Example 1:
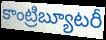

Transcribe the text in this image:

కాంట్రిబ్యూటరీ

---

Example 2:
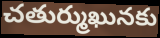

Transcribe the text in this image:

చతుర్ముఖునకు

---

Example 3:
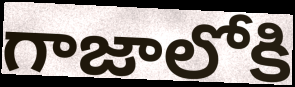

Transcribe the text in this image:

గాజాలోకి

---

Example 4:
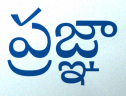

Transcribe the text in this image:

ప్రజ్ఞా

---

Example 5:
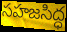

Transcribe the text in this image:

సహజసిద్ధ